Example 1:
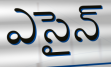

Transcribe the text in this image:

ఎసైన్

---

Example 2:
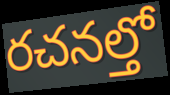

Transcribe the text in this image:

రచనల్తో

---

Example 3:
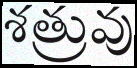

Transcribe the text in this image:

శత్రువు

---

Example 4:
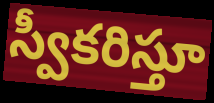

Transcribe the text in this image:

స్వీకరిస్తూ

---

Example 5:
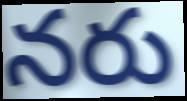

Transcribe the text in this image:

నరు